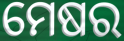
ମେଷର